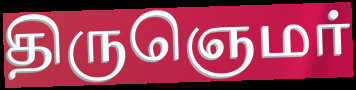
திருஞெமர்